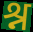
श्न